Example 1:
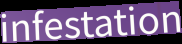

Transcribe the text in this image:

infestation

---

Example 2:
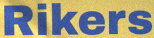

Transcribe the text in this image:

Rikers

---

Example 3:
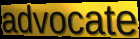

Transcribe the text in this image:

advocate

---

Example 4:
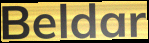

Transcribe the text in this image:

Beldar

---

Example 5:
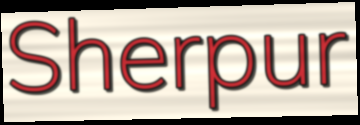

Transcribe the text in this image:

Sherpur